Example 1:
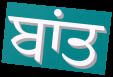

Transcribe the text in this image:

ਬਾਂਤ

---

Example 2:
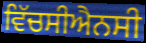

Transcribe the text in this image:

ਵਿੱਚਸੀਐਨਸੀ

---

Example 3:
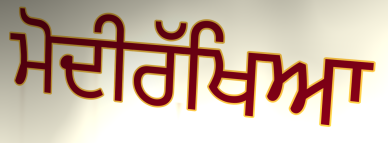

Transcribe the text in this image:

ਮੋਦੀਰੱਖਿਆ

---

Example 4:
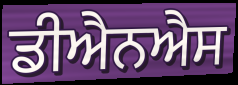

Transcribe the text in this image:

ਡੀਐਨਐਸ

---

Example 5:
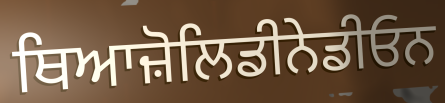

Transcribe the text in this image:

ਥਿਆਜ਼ੋਲਿਡੀਨੇਡੀਓਨ